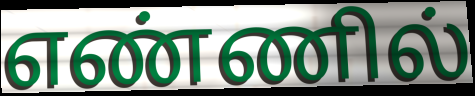
எண்ணில்